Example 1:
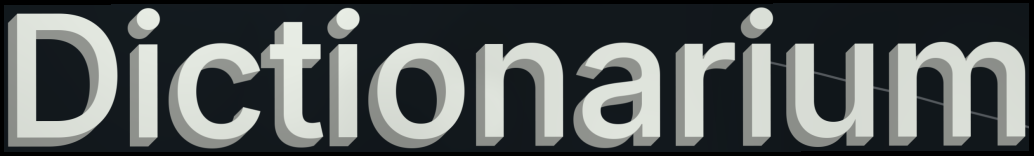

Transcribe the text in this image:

Dictionarium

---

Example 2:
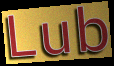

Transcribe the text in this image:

Lub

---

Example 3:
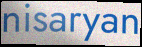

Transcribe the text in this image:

nisaryan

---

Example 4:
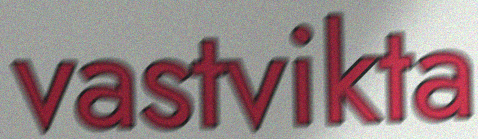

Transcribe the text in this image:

vastvikta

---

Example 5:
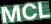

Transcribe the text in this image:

MCL